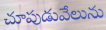
చూపుడువేలును